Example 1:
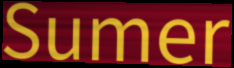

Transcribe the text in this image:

Sumer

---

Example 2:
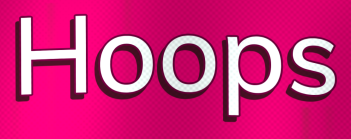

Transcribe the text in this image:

Hoops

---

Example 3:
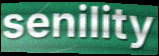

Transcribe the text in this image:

senility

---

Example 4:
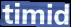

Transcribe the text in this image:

timid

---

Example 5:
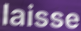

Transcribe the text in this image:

laisse